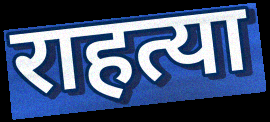
राहत्या